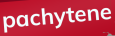
pachytene